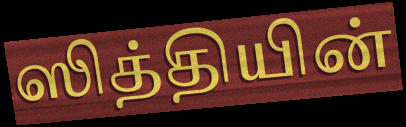
ஸித்தியின்